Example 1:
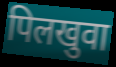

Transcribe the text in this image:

पिलखुवा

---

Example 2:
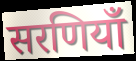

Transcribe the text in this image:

सरणियाँ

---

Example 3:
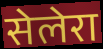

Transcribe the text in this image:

सेलेरा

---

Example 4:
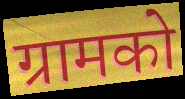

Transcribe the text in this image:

ग्रामको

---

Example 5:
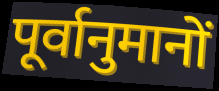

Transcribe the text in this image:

पूर्वानुमानों